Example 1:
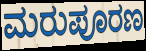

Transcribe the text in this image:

ಮರುಪೂರಣ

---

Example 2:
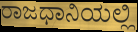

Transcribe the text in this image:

ರಾಜಧಾನಿಯಲ್ಲಿ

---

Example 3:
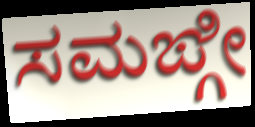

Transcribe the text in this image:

ಸಮಙ್ಗೀ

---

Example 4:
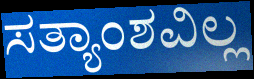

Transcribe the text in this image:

ಸತ್ಯಾಂಶವಿಲ್ಲ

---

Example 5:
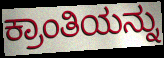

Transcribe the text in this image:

ಕ್ರಾಂತಿಯನ್ನು